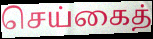
செய்கைத்